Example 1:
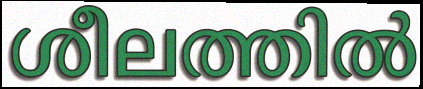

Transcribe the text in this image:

ശീലത്തിൽ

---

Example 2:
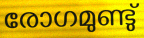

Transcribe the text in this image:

രോഗമുണ്ടു്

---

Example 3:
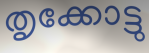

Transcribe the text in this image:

തൃക്കോട്ടു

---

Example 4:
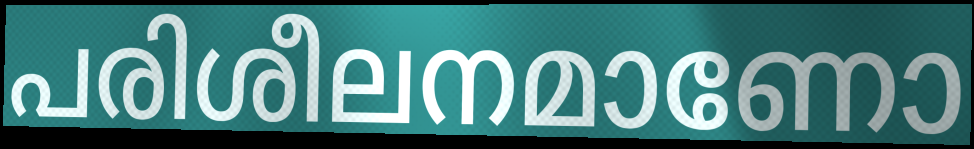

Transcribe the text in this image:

പരിശീലനമാണോ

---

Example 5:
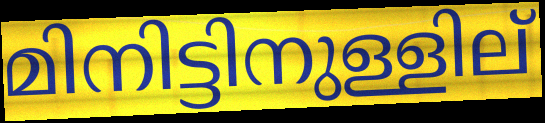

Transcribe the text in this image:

മിനിട്ടിനുള്ളില്